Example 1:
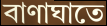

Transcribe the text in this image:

বাণাঘাতে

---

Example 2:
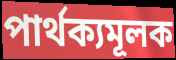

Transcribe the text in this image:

পার্থক্যমূলক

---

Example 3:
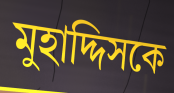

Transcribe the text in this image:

মুহাদ্দিসকে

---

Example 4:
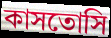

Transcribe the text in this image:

কাসতোসি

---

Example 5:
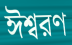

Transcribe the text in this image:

ঈশ্বরণ